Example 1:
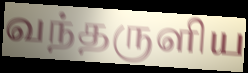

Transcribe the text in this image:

வந்தருளிய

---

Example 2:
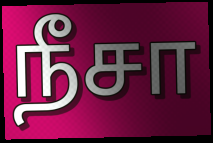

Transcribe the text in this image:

நீசா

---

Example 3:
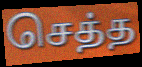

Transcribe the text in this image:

செத்த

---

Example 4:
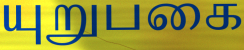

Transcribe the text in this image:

யுறுபகை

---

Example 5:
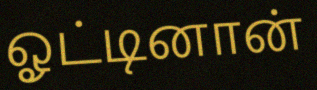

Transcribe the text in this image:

ஓட்டினான்